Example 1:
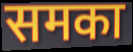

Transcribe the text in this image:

समका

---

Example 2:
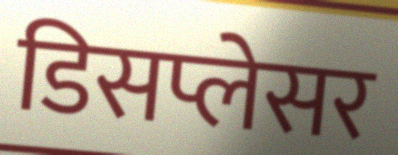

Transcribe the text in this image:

डिसप्लेसर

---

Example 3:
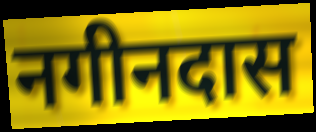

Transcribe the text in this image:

नगीनदास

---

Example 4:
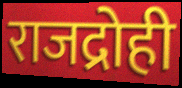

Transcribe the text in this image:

राजद्रोही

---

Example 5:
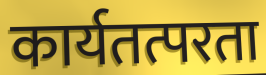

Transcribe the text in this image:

कार्यतत्परता